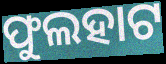
ଫୁଲହାଟ